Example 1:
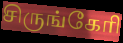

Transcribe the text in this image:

சிருங்கேரி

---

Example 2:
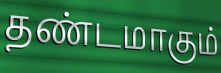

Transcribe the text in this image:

தண்டமாகும்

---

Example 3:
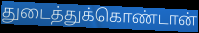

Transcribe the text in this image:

துடைத்துக்கொண்டான்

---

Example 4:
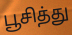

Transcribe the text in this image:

பூசித்து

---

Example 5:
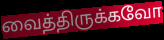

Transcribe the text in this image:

வைத்திருக்கவோ